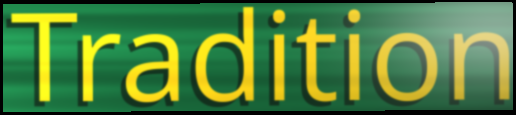
Tradition